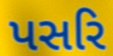
પસરિ